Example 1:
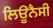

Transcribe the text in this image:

ਲਿਊਨੈਸੀ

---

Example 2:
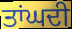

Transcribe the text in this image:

ਤਾਂਘਦੀ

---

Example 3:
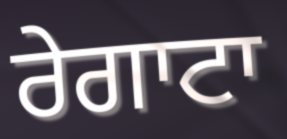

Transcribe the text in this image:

ਰੇਗਾਟਾ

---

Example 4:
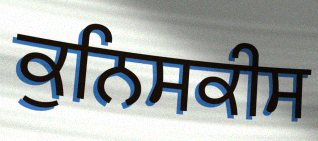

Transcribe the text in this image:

ਕੁਨਿਸਕੀਸ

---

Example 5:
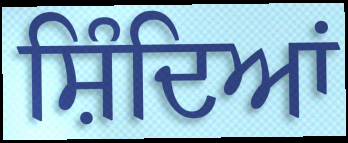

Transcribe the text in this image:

ਸ਼ਿੰਦਿਆਂ